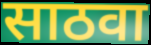
साठवा